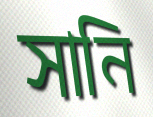
সানি